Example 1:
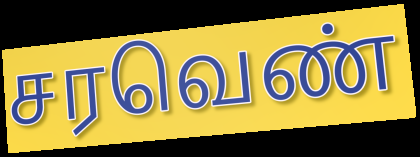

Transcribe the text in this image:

சரவெண்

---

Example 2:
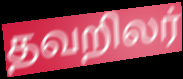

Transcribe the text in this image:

தவறிலர்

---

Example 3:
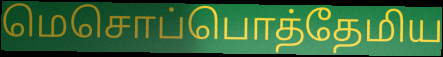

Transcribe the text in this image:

மெசொப்பொத்தேமிய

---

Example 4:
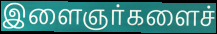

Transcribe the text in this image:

இளைஞர்களைச்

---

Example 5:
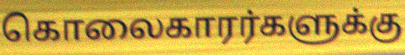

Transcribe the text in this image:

கொலைகாரர்களுக்கு